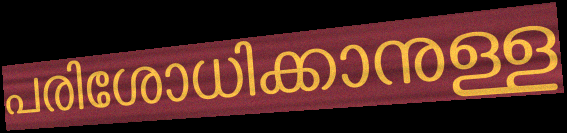
പരിശോധിക്കാനുള്ള